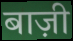
बाज़ी